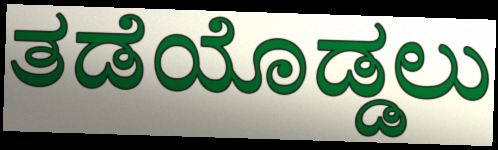
ತಡೆಯೊಡ್ಡಲು